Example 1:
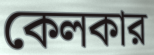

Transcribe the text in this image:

কেলকার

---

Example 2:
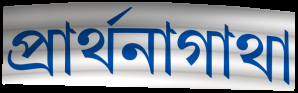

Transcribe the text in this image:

প্রার্থনাগাথা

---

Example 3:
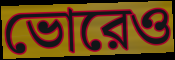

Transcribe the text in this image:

ভোরেও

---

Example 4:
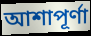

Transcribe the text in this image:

আশাপূর্ণা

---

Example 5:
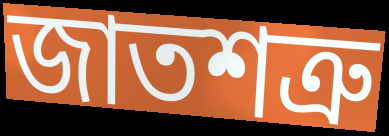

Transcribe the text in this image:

জাতশত্রু